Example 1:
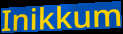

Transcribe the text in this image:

Inikkum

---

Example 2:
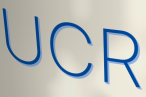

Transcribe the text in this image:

UCR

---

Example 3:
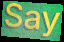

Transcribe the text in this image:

Say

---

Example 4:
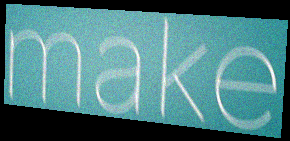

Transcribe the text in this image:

make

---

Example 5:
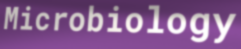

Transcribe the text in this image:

Microbiology